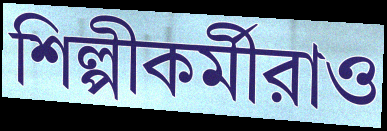
শিল্পীকর্মীরাও